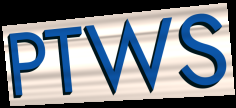
PTWS